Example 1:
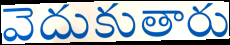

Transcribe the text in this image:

వెదుకుతారు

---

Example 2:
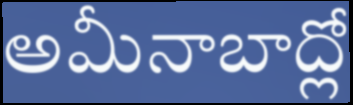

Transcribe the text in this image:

అమీనాబాద్లో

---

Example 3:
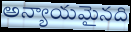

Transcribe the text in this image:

అన్యాయమైనది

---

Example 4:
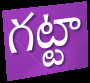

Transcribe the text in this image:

గట్టా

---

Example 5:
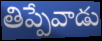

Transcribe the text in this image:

తిప్పేవాడు